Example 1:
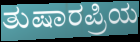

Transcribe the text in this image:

ತುಷಾರಪ್ರಿಯ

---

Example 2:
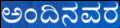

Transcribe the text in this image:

ಅಂದಿನವರ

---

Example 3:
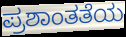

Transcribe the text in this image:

ಪ್ರಶಾಂತತೆಯ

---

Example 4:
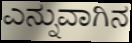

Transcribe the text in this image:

ಎನ್ನುವಾಗಿನ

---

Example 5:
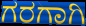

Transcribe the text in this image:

ಗರಗಾಗಿ